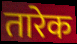
तारेक